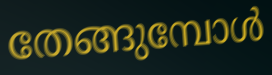
തേങ്ങുമ്പോൾ